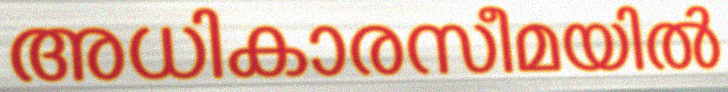
അധികാരസീമയിൽ